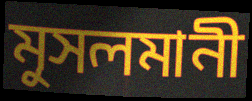
মুসলমানী